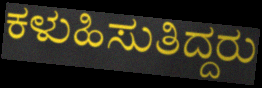
ಕಳುಹಿಸುತಿದ್ದರು